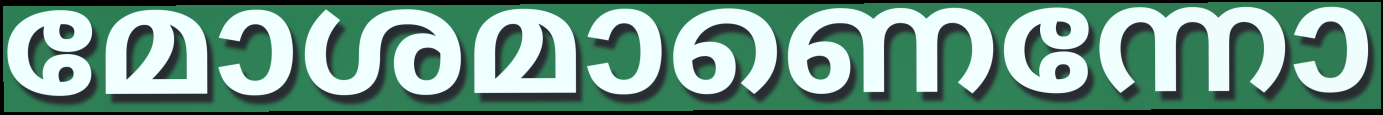
മോശമാണെന്നോ